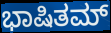
ಭಾಷಿತಮ್